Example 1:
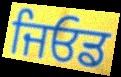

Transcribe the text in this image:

ਜਿਓਡ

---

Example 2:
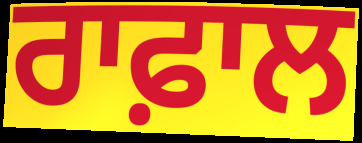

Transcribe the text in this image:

ਰਾਫ਼ਾਲ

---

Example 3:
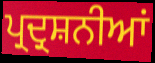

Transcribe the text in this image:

ਪ੍ਰਦ੍ਰਸ਼ਨੀਆਂ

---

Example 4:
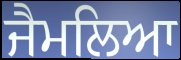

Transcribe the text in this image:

ਜੈਮਲਿਆ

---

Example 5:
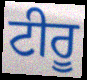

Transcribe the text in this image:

ਟੀਰੂ